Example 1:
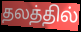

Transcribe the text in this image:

தலத்தில்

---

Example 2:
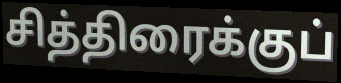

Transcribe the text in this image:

சித்திரைக்குப்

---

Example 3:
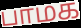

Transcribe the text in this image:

பாமக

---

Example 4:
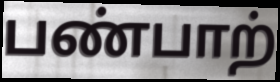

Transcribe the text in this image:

பண்பாற்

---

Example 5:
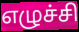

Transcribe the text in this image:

எழுச்சி